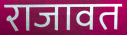
राजावत